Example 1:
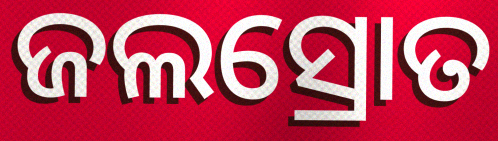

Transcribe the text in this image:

ଜଲସ୍ରୋତ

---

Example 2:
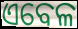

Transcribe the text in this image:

ଏବେଳ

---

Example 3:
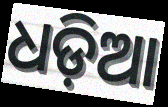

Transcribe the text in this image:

ଧଡ଼ିଆ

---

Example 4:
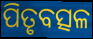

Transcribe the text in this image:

ପିତୃବତ୍ସଳ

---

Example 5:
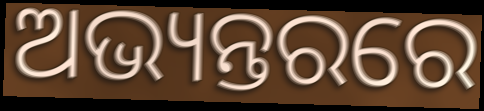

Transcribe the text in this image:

ଅଭ୍ୟନ୍ତରରେ